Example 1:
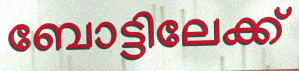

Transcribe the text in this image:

ബോട്ടിലേക്ക്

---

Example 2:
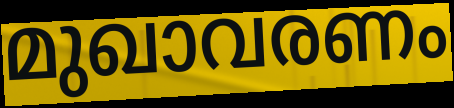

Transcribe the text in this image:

മുഖാവരണം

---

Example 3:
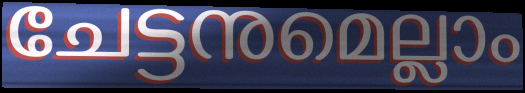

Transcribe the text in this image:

ചേട്ടനുമെല്ലാം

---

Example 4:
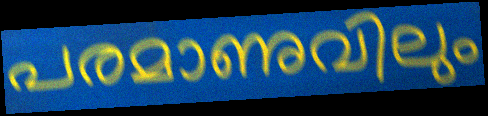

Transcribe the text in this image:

പരമാണുവിലും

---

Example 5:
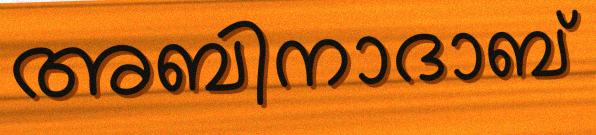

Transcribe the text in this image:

അബിനാദാബ്